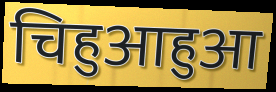
चिहुआहुआ